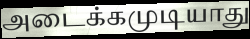
அடைக்கமுடியாது